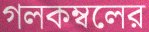
গলকম্বলের